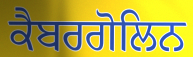
ਕੈਬਰਗੋਲਿਨ